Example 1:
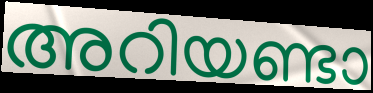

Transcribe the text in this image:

അറിയണ്ടാ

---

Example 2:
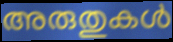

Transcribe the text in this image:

അരുതുകൾ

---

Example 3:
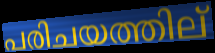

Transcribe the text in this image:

പരിചയത്തില്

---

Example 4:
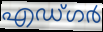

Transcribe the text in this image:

എഡ്ഗർ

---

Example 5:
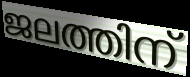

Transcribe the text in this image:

ജലത്തിന്